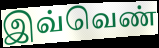
இவ்வெண்